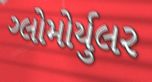
ગ્લોમોર્યુલર